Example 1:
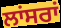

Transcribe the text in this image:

ਲਾਂਸਰਾਂ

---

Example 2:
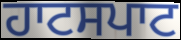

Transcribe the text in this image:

ਹਾਟਸਪਾਟ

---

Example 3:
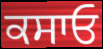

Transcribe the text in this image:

ਕਸਾਓ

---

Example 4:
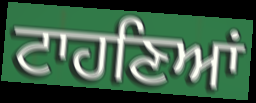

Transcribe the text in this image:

ਟਾਹਣਿਆਂ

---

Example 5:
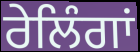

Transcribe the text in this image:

ਰੇਲਿੰਗਾਂ